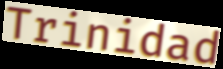
Trinidad